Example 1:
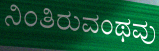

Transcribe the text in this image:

ನಿಂತಿರುವಂಥವು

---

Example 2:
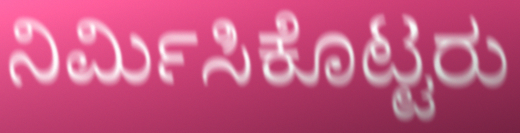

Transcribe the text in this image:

ನಿರ್ಮಿಸಿಕೊಟ್ಟರು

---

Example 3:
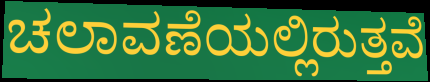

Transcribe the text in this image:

ಚಲಾವಣೆಯಲ್ಲಿರುತ್ತವೆ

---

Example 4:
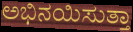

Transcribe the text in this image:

ಅಭಿನಯಿಸುತ್ತಾ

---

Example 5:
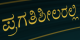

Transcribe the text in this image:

ಪ್ರಗತಿಶೀಲರಲ್ಲಿ